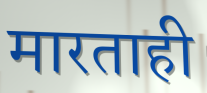
मारताही